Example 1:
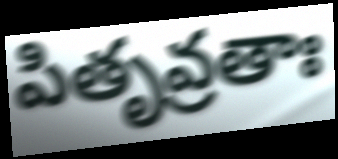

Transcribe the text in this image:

పితృవ్రతాః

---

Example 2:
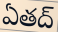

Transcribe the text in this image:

ఏతద్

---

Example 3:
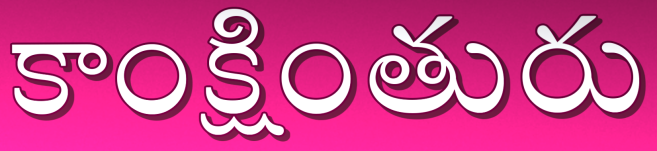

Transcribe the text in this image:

కాంక్షింతురు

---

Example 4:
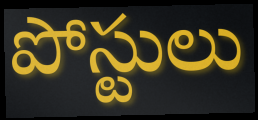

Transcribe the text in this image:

పోస్టులు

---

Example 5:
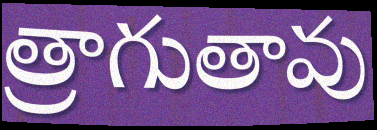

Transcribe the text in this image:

త్రాగుతావు